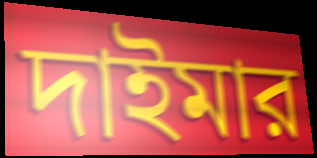
দাইমার